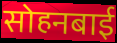
सोहनबाई